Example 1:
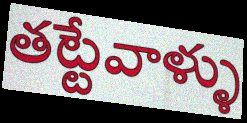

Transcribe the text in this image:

తట్టేవాళ్ళు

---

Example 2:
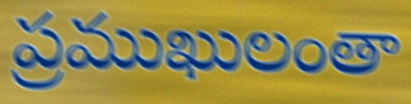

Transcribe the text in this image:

ప్రముఖులంతా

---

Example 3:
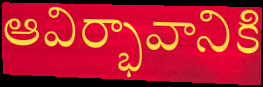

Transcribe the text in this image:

ఆవిర్భావానికి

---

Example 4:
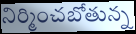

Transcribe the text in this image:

నిర్మించబోతున్న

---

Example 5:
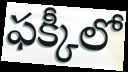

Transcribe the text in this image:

ఫక్కీలో